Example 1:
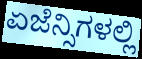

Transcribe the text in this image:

ಏಜೆನ್ಸಿಗಳಲ್ಲಿ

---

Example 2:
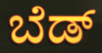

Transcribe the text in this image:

ಬೆಡ್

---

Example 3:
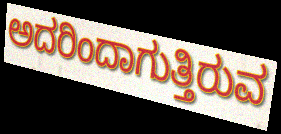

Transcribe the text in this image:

ಅದರಿಂದಾಗುತ್ತಿರುವ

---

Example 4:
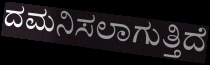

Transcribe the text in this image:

ದಮನಿಸಲಾಗುತ್ತಿದೆ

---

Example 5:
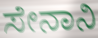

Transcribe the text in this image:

ಸೇನಾನಿ